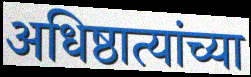
अधिष्ठात्यांच्या